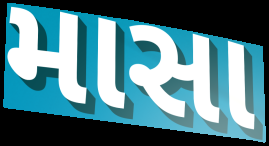
માસા